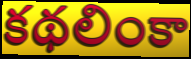
కథలింకా